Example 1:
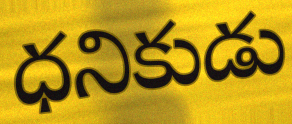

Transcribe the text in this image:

ధనికుడు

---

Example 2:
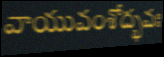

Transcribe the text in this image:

వాయువంశోద్భవః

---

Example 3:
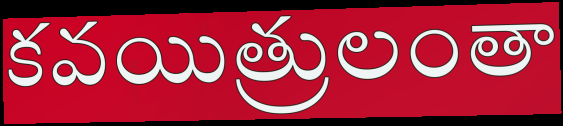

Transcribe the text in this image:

కవయిత్రులంతా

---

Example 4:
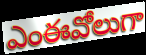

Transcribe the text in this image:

ఎంఈవోలుగా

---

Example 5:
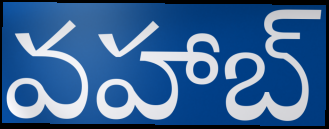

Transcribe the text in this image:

వహాబ్